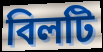
বিলটি